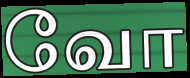
வோ